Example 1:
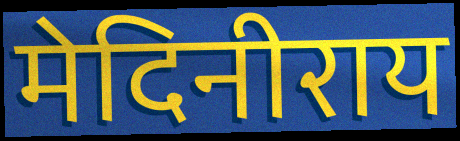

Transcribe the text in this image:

मेदिनीराय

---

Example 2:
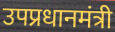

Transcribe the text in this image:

उपप्रधानमंत्री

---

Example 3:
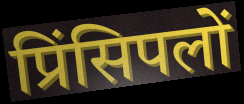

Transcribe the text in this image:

प्रिंसिपलों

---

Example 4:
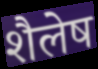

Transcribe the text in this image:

शैलेष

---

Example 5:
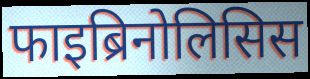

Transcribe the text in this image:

फाइब्रिनोलिसिस